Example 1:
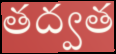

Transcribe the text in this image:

తద్వత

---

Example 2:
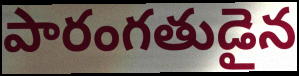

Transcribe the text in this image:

పారంగతుడైన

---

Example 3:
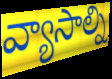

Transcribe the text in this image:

వ్యాసాల్ని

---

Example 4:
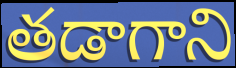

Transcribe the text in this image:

తడాగాని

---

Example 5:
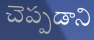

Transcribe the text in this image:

చెప్పడాని